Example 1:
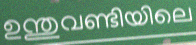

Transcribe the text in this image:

ഉന്തുവണ്ടിയിലെ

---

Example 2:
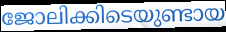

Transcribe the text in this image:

ജോലിക്കിടെയുണ്ടായ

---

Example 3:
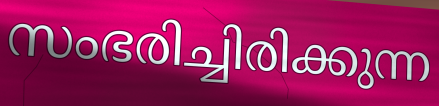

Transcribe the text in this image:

സംഭരിച്ചിരിക്കുന്ന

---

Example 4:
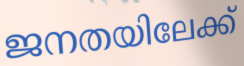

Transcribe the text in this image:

ജനതയിലേക്ക്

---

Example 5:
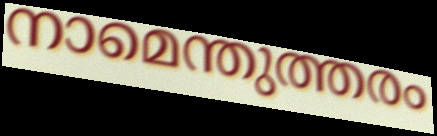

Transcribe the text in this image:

നാമെന്തുത്തരം